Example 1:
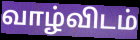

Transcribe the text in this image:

வாழ்விடம்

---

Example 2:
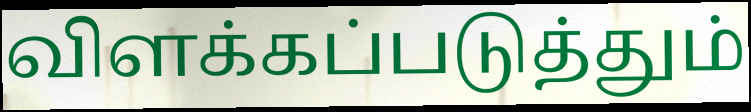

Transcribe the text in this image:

விளக்கப்படுத்தும்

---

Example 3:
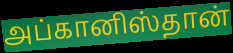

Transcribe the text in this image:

அப்கானிஸ்தான்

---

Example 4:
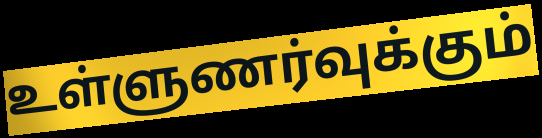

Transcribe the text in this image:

உள்ளுணர்வுக்கும்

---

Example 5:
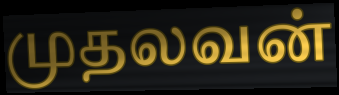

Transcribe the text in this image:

முதலவன்